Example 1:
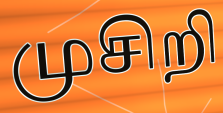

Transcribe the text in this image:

முசிறி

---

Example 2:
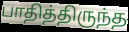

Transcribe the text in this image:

பாதித்திருந்த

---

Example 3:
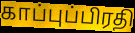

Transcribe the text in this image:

காப்புப்பிரதி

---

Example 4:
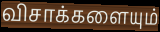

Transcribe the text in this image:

விசாக்களையும்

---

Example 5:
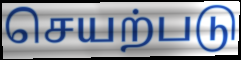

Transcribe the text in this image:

செயற்படு